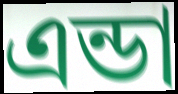
এন্ডা